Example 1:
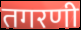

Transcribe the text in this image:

तगरणी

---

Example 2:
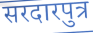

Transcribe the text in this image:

सरदारपुत्र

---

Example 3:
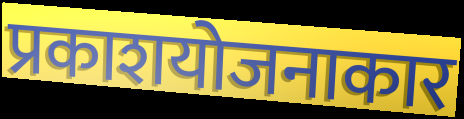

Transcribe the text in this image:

प्रकाशयोजनाकार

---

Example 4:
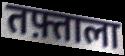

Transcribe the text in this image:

तफ़्ताला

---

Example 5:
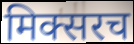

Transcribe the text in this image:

मिक्सरच